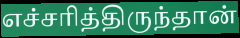
எச்சரித்திருந்தான்